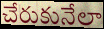
చేరుకునేలా